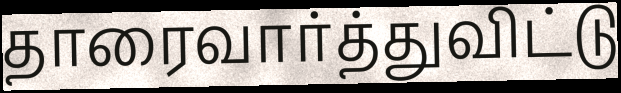
தாரைவார்த்துவிட்டு